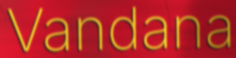
Vandana